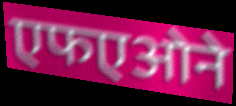
एफएओने